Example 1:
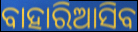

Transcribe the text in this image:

ବାହାରିଆସିବ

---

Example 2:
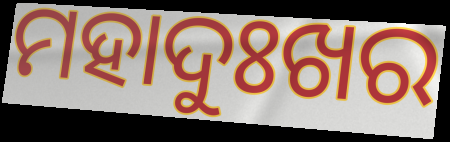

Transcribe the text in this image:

ମହାଦୁଃଖର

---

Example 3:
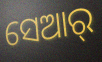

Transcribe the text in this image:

ସେଆର୍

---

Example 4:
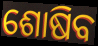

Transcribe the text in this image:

ଶୋଷିବ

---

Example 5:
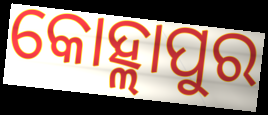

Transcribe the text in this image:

କୋହ୍ଲାପୁର